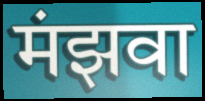
मंझवा